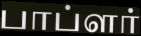
பாப்ளர்